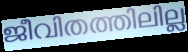
ജീവിതത്തിലില്ല